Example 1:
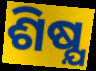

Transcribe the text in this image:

ଶିଷ୍ଯ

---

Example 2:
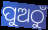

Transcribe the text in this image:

ପୁଅଠୁଁ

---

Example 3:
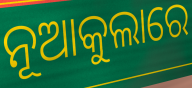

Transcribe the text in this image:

ନୂଆକୁଲାରେ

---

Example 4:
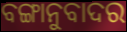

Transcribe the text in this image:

ବଙ୍ଗାନୁବାଦର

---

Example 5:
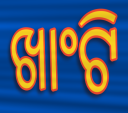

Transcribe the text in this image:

ଖାଂଟି